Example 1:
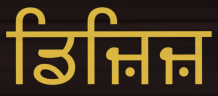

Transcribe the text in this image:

ਡਿਜ਼ਿਜ਼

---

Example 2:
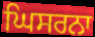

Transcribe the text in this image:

ਘਿਸਰਨਾ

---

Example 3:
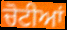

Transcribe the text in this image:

ਚੋਟੀਆਂ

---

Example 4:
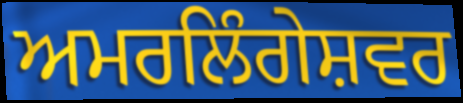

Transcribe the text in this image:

ਅਮਰਲਿੰਗੇਸ਼ਵਰ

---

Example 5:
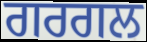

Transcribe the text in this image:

ਗਰਗਲ